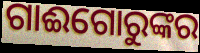
ଗାଈଗୋରୁଙ୍କର